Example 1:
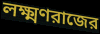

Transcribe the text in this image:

লক্ষ্মণরাজের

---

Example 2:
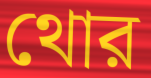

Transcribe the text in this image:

থোর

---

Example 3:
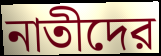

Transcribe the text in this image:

নাতীদের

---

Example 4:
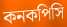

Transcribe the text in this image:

কনকপিসি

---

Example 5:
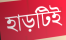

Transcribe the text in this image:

হাড়টিই